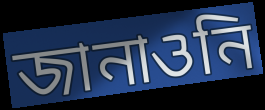
জানাওনি